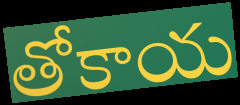
తోకాయ